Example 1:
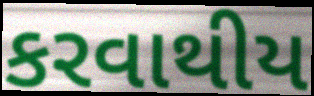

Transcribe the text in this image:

કરવાથીય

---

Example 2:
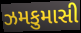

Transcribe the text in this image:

ઝમકુમાસી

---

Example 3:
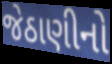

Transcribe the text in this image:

જેઠાણીનો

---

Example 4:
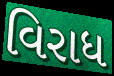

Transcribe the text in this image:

વિરાધ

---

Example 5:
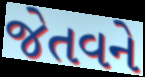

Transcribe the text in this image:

જેતવને